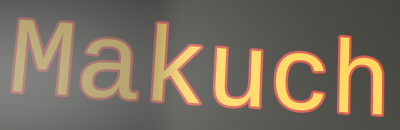
Makuch